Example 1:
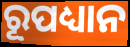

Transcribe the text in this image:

ରୂପଧ୍ୟାନ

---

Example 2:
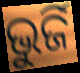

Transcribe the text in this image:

ଭୁର୍ଜି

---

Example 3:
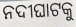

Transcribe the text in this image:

ନଦୀଘାଟକୁ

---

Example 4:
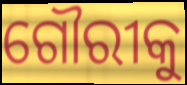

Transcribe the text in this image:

ଗୌରୀକୁ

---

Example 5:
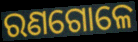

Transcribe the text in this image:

ରଣଗୋଳେ